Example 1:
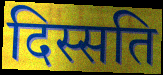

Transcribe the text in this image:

दिस्सति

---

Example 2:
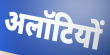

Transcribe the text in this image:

अलॉटियों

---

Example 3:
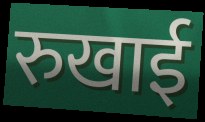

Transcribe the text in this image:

रुखाई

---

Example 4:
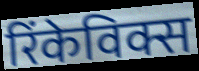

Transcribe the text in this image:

रिंकेविक्स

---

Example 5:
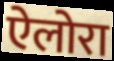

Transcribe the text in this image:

ऐलोरा